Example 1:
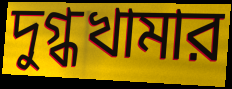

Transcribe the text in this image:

দুগ্ধখামার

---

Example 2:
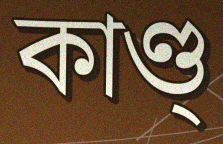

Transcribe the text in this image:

কাণ্ড্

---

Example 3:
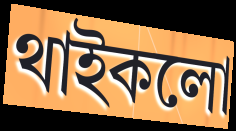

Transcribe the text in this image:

থাইকলো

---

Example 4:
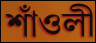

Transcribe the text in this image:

শাঁওলী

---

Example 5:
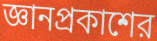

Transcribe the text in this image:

জ্ঞানপ্রকাশের